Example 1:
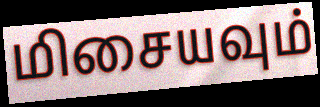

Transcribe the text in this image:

மிசையவும்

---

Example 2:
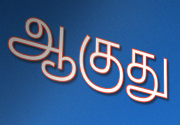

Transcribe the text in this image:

ஆகுது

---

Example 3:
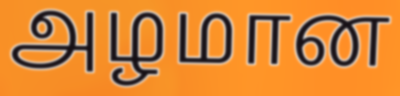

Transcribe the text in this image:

அழமான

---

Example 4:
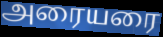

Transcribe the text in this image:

அரையரை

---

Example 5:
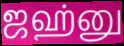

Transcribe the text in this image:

ஜஹ்னு